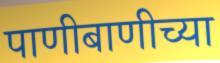
पाणीबाणीच्या